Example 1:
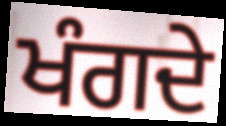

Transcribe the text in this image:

ਖੰਗਦੇ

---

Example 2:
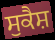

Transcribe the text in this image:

ਸੁਕੈਸ਼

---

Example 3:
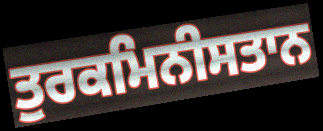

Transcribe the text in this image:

ਤੁਰਕਮਿਨੀਸਤਾਨ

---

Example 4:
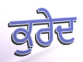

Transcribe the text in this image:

ਕੁਰੇਦ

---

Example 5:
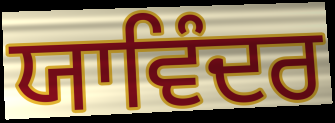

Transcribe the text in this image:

ਯਾਵਿੰਦਰ